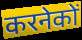
करनेकों